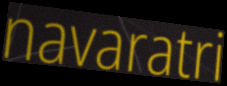
navaratri